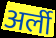
अर्ली